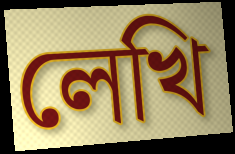
লেখি